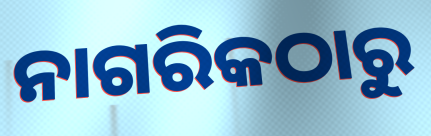
ନାଗରିକଠାରୁ